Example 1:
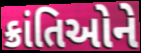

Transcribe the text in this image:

ક્રાંતિઓને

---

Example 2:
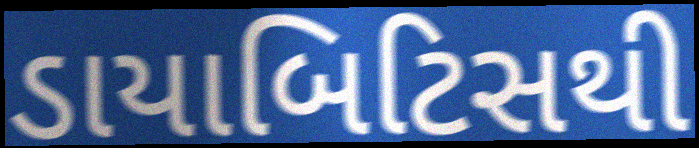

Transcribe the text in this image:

ડાયાબિટિસથી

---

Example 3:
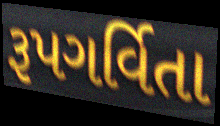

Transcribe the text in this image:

રૂપગર્વિતા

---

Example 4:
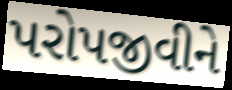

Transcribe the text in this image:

પરોપજીવીને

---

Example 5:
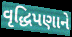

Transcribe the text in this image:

વૃદ્ધિપણાને